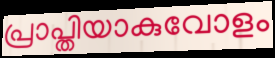
പ്രാപ്തിയാകുവോളം